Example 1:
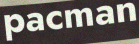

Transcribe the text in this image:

pacman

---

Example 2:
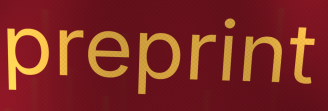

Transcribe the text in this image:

preprint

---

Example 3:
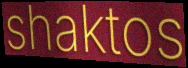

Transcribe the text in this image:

shaktos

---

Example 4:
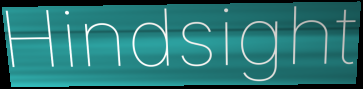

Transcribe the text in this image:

Hindsight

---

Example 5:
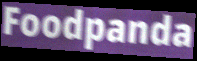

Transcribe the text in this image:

Foodpanda